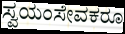
ಸ್ವಯಂಸೇವಕರೂ